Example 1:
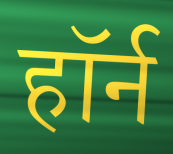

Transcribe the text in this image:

हॉर्न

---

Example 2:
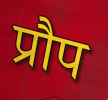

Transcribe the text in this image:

प्रौप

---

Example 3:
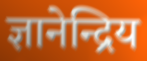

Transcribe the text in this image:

ज्ञानेन्द्रिय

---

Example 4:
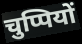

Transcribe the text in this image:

चुप्पियों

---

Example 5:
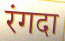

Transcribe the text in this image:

रंगदा